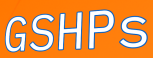
GSHPs